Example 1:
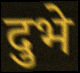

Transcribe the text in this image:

दुभे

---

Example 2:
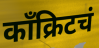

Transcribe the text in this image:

काँक्रिटचं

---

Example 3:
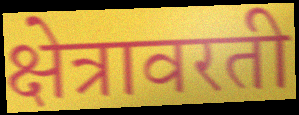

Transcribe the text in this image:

क्षेत्रावरती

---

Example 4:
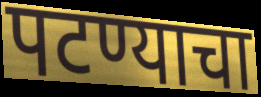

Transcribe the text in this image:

पटण्याचा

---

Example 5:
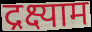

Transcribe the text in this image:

द्रक्ष्याम